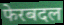
फेरबदल